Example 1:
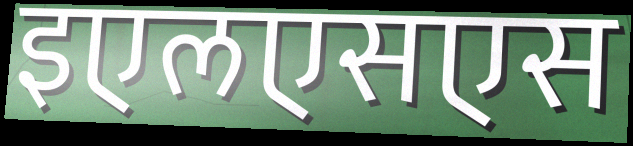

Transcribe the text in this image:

इएलएसएस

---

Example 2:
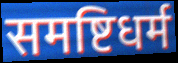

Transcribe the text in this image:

समष्टिधर्म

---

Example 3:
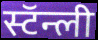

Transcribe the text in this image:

स्टॅन्ली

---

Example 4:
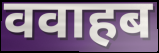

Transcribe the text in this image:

ववाहब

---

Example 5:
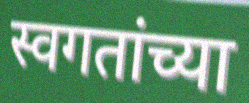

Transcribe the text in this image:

स्वगतांच्या